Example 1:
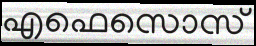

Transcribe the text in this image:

എഫെസൊസ്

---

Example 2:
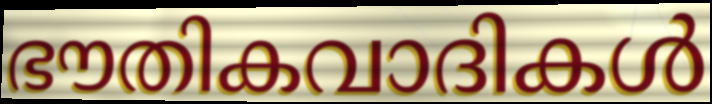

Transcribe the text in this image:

ഭൗതികവാദികൾ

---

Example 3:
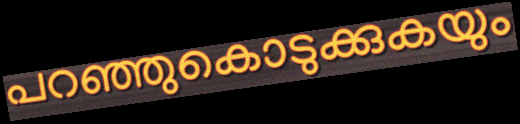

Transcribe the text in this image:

പറഞ്ഞുകൊടുക്കുകയും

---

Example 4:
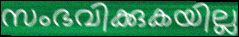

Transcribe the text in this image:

സംഭവിക്കുകയില്ല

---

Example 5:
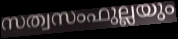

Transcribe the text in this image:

സത്വസംഫുല്ലയും